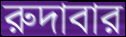
রুদাবার